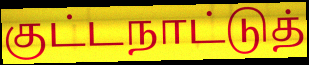
குட்டநாட்டுத்